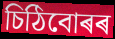
চিঠিবোৰৰ